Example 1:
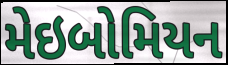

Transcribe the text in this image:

મેઇબોમિયન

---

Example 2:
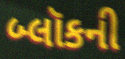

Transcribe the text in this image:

બ્લૉકની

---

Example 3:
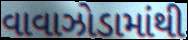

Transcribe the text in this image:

વાવાઝોડામાંથી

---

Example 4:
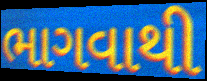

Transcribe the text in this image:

ભાગવાથી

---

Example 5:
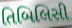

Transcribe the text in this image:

તિબિલિસી